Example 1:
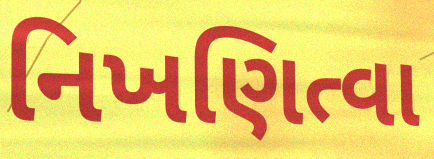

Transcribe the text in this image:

નિખણિત્વા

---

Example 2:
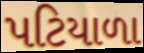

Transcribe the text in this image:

પટિયાળા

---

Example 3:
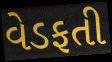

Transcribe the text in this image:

વેડફતી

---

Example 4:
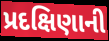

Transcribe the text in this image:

પ્રદક્ષિણાની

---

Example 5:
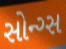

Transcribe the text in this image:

સોન્ગ્સ